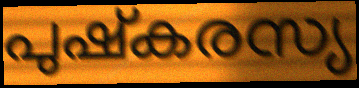
പുഷ്കരസ്യ